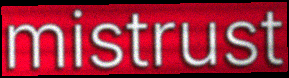
mistrust